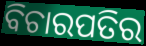
ବିଚାରପତିର